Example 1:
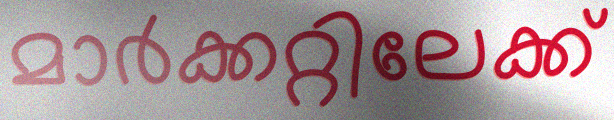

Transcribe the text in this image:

മാർക്കറ്റിലേക്ക്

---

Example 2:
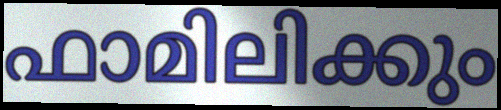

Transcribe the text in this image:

ഫാമിലിക്കും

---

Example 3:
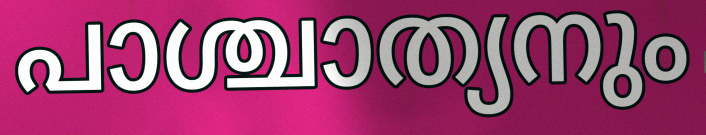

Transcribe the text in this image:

പാശ്ചാത്യനും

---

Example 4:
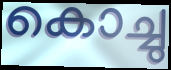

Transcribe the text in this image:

കൊച്ചു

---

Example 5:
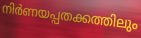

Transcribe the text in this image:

നിർണയപ്പതക്കത്തിലും